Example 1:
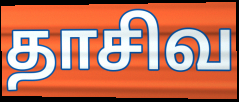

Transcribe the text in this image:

தாசிவ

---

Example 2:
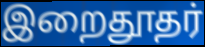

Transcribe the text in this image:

இறைதூதர்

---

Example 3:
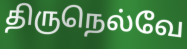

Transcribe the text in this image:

திருநெல்வே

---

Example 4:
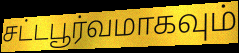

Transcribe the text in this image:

சட்டபூர்வமாகவும்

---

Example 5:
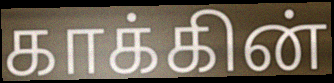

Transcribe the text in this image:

காக்கின்